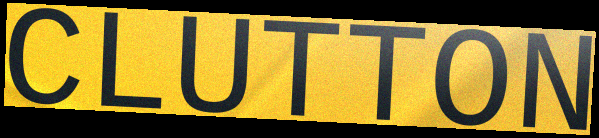
CLUTTON